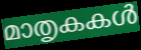
മാതൃകകൾ